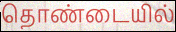
தொண்டையில்